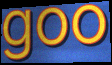
goo